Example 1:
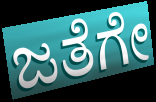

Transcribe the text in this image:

ಜತೆಗೇ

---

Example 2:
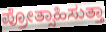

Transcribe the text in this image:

ಪ್ರೋತ್ಸಾಹಿಸುತ್ತಾ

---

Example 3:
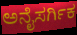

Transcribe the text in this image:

ಅನೈಸರ್ಗಿಕ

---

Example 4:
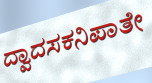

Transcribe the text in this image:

ದ್ವಾದಸಕನಿಪಾತೇ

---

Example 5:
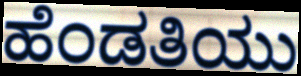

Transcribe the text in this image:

ಹೆಂಡತಿಯು